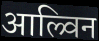
आल्विन